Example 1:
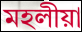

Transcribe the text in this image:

মহলীয়া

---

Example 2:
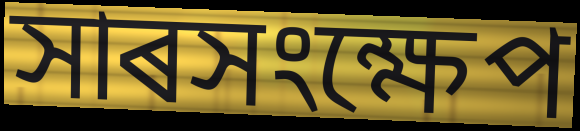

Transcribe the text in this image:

সাৰসংক্ষেপ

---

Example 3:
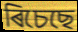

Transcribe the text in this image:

ৰিচেছে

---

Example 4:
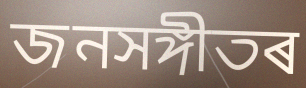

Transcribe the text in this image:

জনসঙ্গীতৰ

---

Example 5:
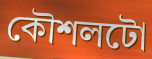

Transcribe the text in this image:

কৌশলটো